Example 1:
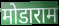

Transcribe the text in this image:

मोडाराम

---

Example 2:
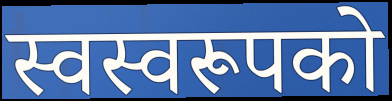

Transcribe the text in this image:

स्वस्वरूपको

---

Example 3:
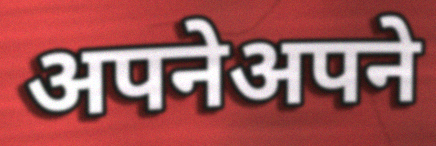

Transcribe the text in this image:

अपनेअपने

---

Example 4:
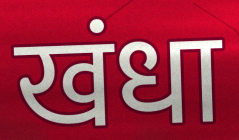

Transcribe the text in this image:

खंधा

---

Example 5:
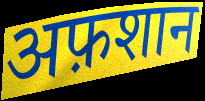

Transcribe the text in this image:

अफ़शान